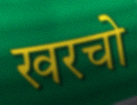
खरचो